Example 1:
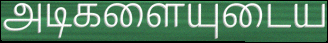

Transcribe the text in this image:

அடிகளையுடைய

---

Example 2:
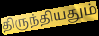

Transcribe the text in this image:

திருந்தியதும்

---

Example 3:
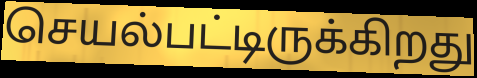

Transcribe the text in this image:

செயல்பட்டிருக்கிறது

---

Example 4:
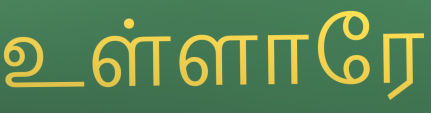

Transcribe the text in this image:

உள்ளாரே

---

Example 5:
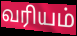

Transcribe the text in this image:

வரியம்